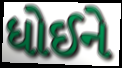
ધોઈને